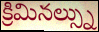
క్రిమినల్స్ను